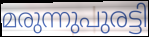
മരുന്നുപുരട്ടി